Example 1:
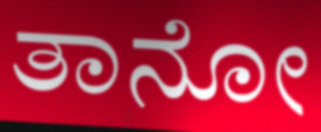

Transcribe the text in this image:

ತಾನೋ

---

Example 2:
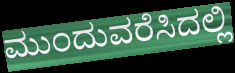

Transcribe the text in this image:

ಮುಂದುವರೆಸಿದಲ್ಲಿ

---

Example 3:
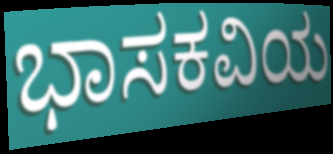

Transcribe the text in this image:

ಭಾಸಕವಿಯ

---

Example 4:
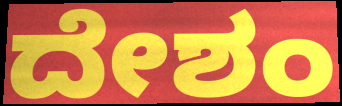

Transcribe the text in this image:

ದೇಶಂ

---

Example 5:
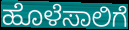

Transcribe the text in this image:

ಹೊಳೆಸಾಲಿಗೆ